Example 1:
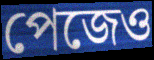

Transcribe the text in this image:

পেজেও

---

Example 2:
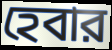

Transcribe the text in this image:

হেবার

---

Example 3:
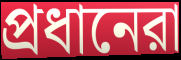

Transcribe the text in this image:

প্রধানেরা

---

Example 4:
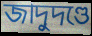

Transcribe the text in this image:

জাদুদণ্ডে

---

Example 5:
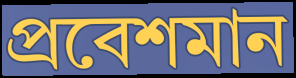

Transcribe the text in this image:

প্রবেশমান